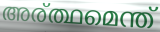
അര്ത്ഥമെന്ത്